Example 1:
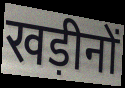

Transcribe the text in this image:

खड़ीनों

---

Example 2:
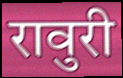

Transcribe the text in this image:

रावुरी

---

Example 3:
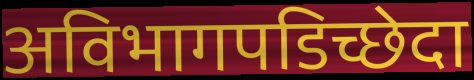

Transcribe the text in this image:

अविभागपडिच्छेदा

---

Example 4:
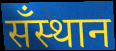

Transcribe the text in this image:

सँस्थान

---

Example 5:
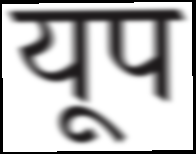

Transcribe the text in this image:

यूप